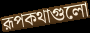
রূপকথাগুলো